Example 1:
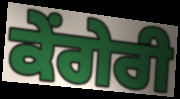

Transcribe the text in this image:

ਕੇਂਗੇਰੀ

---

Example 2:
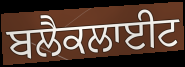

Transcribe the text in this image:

ਬਲੈਕਲਾਈਟ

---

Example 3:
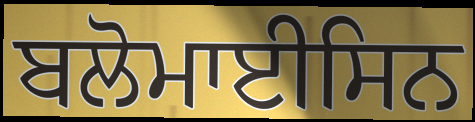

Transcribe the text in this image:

ਬਲੋਮਾਈਸਿਨ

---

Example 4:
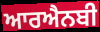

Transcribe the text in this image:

ਆਰਐਨਬੀ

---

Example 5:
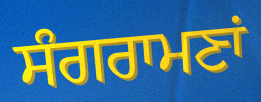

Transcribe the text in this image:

ਸੰਗਰਾਮਣਾਂ